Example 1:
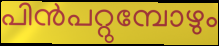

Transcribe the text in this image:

പിൻപറ്റുമ്പോഴും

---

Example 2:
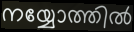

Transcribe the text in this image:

നയ്യോത്തിൽ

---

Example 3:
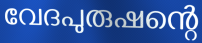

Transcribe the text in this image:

വേദപുരുഷന്റെ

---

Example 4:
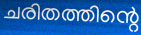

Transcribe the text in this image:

ചരിതത്തിന്റെ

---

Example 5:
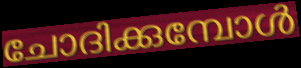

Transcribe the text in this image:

ചോദിക്കുമ്പോൾ